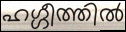
ഹഗ്ഗീത്തിൽ